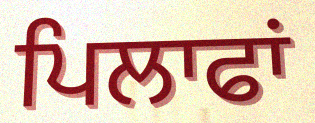
ਪਿਲਾਫਾਂ